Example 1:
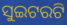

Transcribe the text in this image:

ସୁଇଟରଟି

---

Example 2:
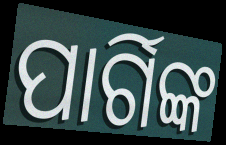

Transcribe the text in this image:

ପାର୍ଗିଙ୍କ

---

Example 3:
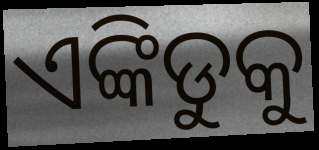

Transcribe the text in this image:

ଏଙ୍କିଡୁକୁ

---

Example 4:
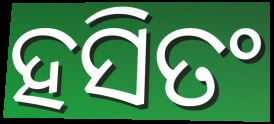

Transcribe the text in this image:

ହସିତଂ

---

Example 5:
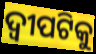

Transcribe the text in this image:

ଦ୍ୱୀପଟିକୁ